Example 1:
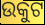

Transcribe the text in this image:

ଉକୁଟ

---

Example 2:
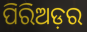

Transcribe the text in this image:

ପିରିଅଡ଼ର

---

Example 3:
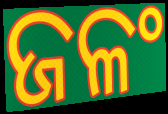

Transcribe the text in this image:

ଜଳଂ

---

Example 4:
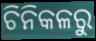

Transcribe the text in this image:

ଚିନିକଳରୁ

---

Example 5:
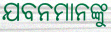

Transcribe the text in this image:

ଯବନମାନଙ୍କୁ